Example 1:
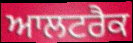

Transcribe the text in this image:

ਆਲਟਰੈਕ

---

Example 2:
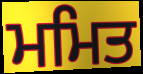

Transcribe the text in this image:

ਮਮਿਤ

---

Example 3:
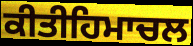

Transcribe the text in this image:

ਕੀਤੀਹਿਮਾਚਲ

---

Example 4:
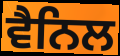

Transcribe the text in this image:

ਵੈਨਿਲ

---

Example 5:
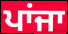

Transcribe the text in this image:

ਪਾਂਜਾ